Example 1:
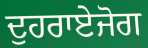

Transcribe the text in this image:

ਦੁਹਰਾਏਜੋਗ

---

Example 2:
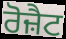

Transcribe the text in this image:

ਰੋਜ਼ੈਟ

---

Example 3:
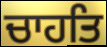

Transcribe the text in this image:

ਚਾਹਤਿ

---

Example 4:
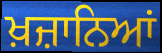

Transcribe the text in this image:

ਖ਼ਜ਼ਾਨਿਆਂ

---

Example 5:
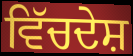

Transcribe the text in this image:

ਵਿੱਚਦੇਸ਼